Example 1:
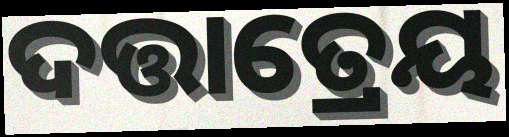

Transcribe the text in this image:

ଦତ୍ତାତ୍ରେୟ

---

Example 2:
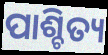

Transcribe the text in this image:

ପାଶ୍ଚିତ୍ୟ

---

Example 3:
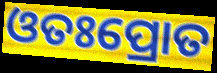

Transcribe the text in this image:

ଓତଃପ୍ରୋତ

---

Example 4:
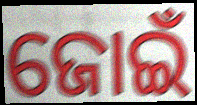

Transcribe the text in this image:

ଜୋଇଁ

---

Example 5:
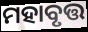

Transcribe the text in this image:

ମହାବୃତ୍ତ